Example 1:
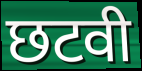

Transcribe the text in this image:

छटवी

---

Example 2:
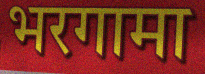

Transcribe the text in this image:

भरगामा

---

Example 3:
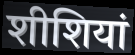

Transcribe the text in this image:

शीशियां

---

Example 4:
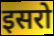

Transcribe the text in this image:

इसरो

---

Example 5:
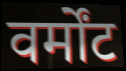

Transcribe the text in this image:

वर्मोंट